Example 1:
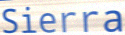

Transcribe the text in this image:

Sierra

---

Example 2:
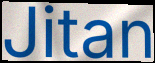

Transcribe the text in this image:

Jitan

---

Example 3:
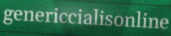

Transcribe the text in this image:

genericcialisonline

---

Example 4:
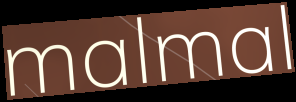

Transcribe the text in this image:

malmal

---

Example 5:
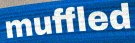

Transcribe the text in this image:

muffled